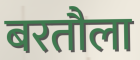
बरतौला